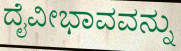
ದೈವೀಭಾವವನ್ನು